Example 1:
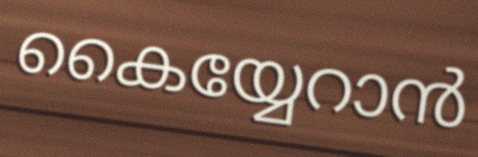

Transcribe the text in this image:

കൈയ്യേറാൻ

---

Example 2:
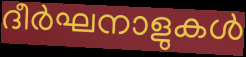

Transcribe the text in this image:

ദീർഘനാളുകൾ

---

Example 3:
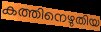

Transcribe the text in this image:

കത്തിനെഴുതിയ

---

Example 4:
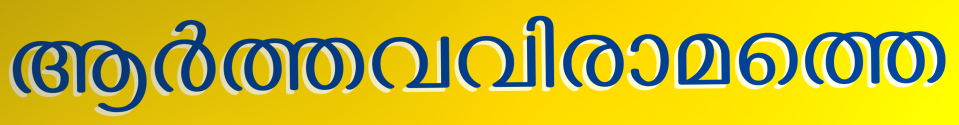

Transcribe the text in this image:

ആർത്തവവിരാമത്തെ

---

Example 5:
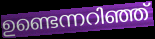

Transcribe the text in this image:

ഉണ്ടെന്നറിഞ്ഞ്